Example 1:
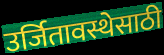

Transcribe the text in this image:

उर्जितावस्थेसाठी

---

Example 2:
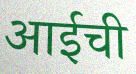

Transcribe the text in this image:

आईची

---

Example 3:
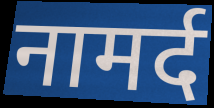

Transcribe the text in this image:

नामर्द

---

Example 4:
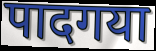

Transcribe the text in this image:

पादगया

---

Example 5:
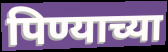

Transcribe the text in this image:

पिण्याच्या